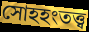
সোহহংতত্ত্ব